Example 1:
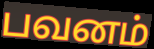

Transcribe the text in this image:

பவனம்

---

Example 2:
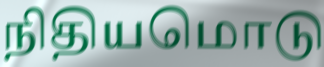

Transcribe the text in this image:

நிதியமொடு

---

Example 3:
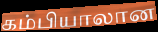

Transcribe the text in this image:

கம்பியாலான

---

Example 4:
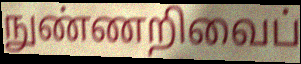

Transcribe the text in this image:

நுண்ணறிவைப்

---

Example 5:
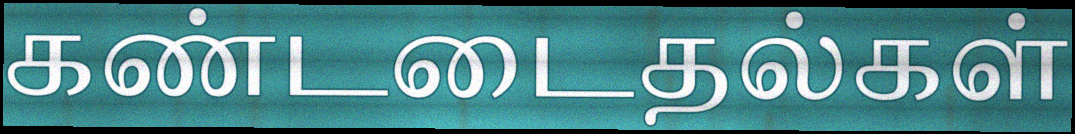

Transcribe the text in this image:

கண்டடைதல்கள்